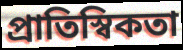
প্রাতিস্বিকতা